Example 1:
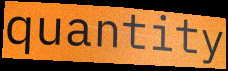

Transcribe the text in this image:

quantity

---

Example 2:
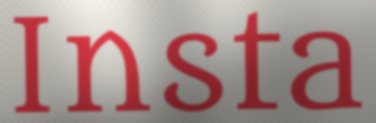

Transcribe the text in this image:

Insta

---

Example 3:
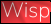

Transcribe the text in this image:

Wisp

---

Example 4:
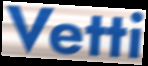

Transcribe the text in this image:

Vetti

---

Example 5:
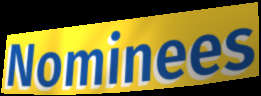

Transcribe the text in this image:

Nominees